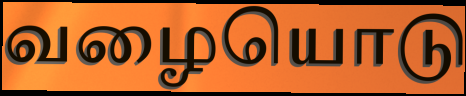
வழையொடு